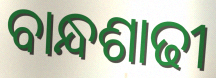
ବାନ୍ଧଶାଢୀ